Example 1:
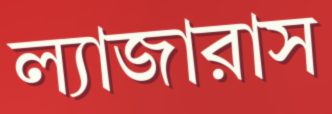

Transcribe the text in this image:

ল্যাজারাস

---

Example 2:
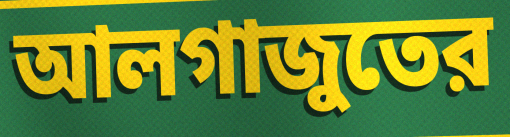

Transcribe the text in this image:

আলগাজুতের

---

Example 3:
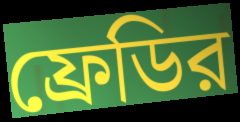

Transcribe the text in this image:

ফ্রেডির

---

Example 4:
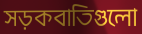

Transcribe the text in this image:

সড়কবাতিগুলো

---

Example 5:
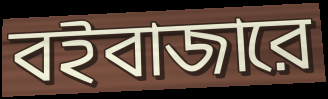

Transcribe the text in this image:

বইবাজারে